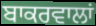
ਬਾਕਰਵਾਲਾਂ